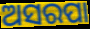
ଅସରପା